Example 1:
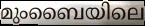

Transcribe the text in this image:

മുംബൈയിലെ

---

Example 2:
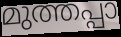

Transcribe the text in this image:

മുത്തപ്പാ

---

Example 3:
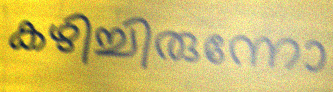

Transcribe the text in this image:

കഴിച്ചിരുന്നോ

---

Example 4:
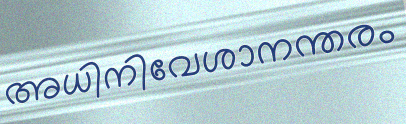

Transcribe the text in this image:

അധിനിവേശാനന്തരം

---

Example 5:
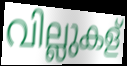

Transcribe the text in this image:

വില്ലുകള്